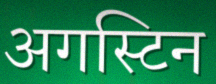
अगस्टिन